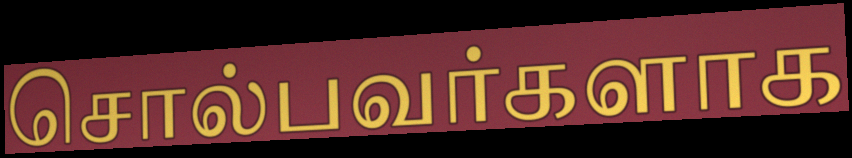
சொல்பவர்களாக